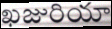
ఖజురియా